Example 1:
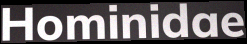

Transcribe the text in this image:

Hominidae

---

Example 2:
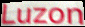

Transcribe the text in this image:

Luzon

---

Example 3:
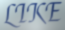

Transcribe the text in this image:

LIKE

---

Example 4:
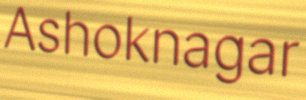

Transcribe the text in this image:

Ashoknagar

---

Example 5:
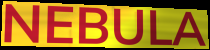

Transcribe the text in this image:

NEBULA